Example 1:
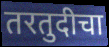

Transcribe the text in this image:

तरतुदीचा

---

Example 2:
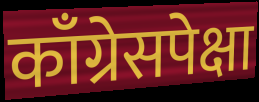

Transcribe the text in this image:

काँग्रेसपेक्षा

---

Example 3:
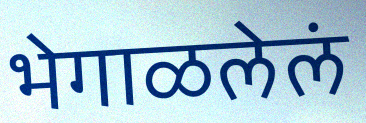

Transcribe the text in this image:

भेगाळलेलं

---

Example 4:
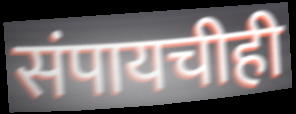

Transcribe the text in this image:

संपायचीही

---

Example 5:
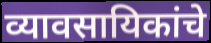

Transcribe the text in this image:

व्यावसायिकांचे